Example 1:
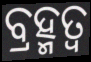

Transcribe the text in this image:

ବ୍ରହ୍ମତ୍ୱ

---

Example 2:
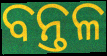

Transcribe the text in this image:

ବନ୍ତଳ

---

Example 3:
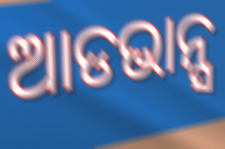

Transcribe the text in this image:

ଆଡଭାନ୍ସ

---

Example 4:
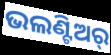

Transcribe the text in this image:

ଭଲଣ୍ଟିଅର୍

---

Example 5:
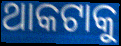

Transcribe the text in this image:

ଥାକଟାକୁ